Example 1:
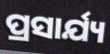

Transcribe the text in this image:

ପ୍ରସାର୍ଯ୍ୟ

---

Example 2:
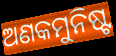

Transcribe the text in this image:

ଅଣକମୁନିଷ୍ଟ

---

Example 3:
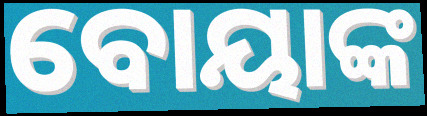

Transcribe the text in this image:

ବୋୟାଙ୍କ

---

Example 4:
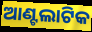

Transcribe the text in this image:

ଆଣ୍ଟଲାଟିକ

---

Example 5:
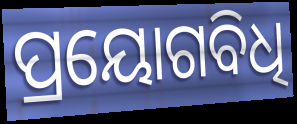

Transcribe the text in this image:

ପ୍ରୟୋଗବିଧି